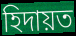
হিদায়ত